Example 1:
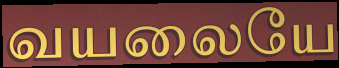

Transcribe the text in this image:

வயலையே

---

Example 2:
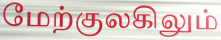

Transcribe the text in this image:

மேற்குலகிலும்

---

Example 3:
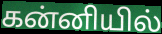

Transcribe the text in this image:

கன்னியில்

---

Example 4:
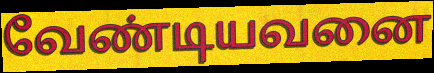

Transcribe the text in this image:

வேண்டியவனை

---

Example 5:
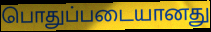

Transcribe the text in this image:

பொதுப்படையானது